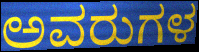
ಅವರುಗಳ